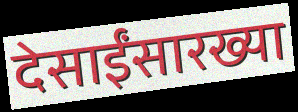
देसाईंसारख्या